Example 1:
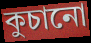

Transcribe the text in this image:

কুচানো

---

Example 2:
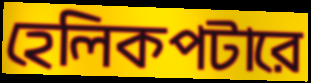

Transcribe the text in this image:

হেলিকপটারে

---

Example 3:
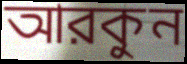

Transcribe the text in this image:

আরকুন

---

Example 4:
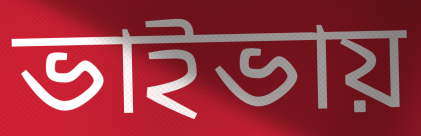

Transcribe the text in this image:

ভাইভায়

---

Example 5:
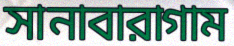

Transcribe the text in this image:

সানাবারাগাম